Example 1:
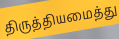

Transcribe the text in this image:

திருத்தியமைத்து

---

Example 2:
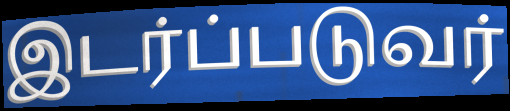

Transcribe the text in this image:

இடர்ப்படுவர்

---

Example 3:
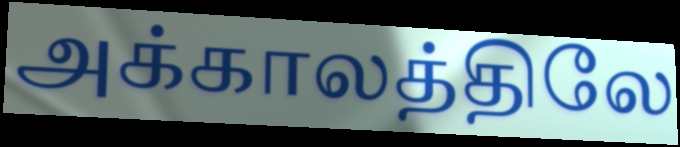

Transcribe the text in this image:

அக்காலத்திலே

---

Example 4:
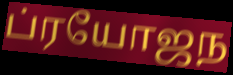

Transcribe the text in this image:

ப்ரயோஜந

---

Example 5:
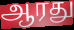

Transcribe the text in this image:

ஆரது